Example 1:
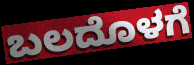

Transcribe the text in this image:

ಬಲದೊಳಗೆ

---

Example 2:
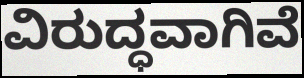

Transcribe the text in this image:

ವಿರುದ್ಧವಾಗಿವೆ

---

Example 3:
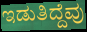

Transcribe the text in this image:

ಇಡುತಿದ್ದೆವು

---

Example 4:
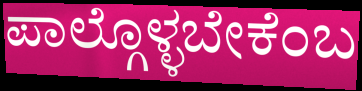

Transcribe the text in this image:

ಪಾಲ್ಗೊಳ್ಳಬೇಕೆಂಬ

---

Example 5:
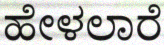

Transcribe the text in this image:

ಹೇಳಲಾರೆ